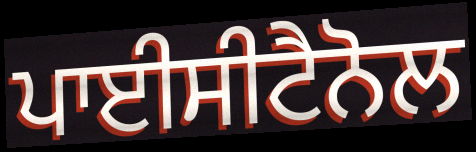
ਪਾਈਸੀਟੈਨੋਲ